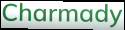
Charmady